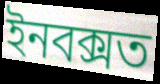
ইনবক্সত